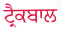
ਟ੍ਰੈਕਬਾਲ